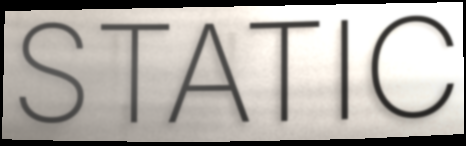
STATIC